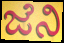
ಜೆನಿ